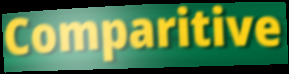
Comparitive